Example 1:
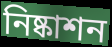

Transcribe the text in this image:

নিষ্কাশন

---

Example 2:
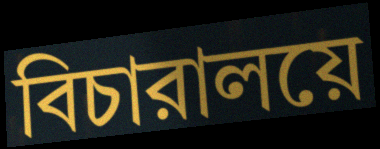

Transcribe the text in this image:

বিচারালয়ে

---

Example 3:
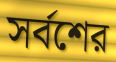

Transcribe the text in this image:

সর্বশের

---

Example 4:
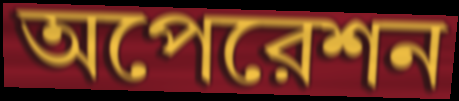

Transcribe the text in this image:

অপেরেশন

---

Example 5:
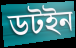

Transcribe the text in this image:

ডটইন